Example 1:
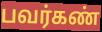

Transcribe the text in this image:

பவர்கண்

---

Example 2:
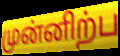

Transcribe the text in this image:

முன்னிற்ப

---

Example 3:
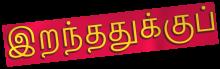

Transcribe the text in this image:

இறந்ததுக்குப்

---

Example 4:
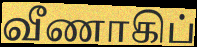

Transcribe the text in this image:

வீணாகிப்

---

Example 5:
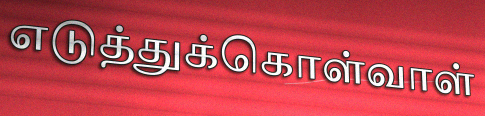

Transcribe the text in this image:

எடுத்துக்கொள்வாள்